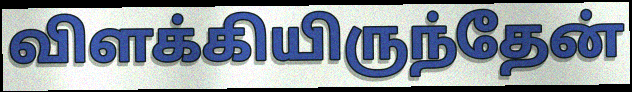
விளக்கியிருந்தேன்